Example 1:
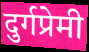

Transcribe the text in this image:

दुर्गप्रेमी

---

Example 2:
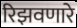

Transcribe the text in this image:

रिझवणारे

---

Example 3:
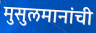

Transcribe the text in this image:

मुसुलमानांची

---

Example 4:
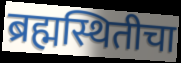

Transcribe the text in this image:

ब्रह्मस्थितीचा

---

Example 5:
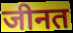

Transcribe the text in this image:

जीनत